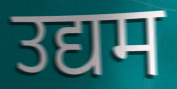
उद्यम